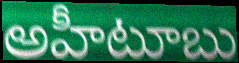
అహీటూబు